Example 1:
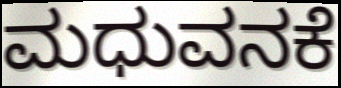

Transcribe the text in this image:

ಮಧುವನಕೆ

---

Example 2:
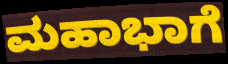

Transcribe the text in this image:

ಮಹಾಭಾಗೆ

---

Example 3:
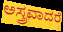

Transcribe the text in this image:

ಅಸ್ತ್ರವಾದರೆ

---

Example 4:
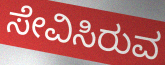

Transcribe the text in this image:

ಸೇವಿಸಿರುವ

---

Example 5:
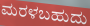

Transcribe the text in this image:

ಮರಳಬಹುದು